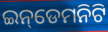
ଇନ୍‌ଡେମନିଟି